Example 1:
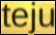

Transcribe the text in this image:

teju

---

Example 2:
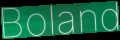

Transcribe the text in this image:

Boland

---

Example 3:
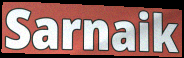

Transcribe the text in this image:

Sarnaik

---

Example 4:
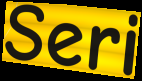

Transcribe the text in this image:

Seri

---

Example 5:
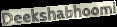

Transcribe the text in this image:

Deekshabhoomi